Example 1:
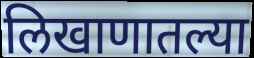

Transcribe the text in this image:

लिखाणातल्या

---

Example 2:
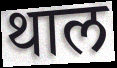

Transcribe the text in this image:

थाल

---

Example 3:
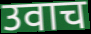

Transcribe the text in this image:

उवाच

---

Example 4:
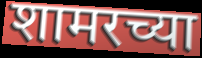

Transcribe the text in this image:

शामरच्या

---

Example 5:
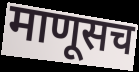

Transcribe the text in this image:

माणूसच